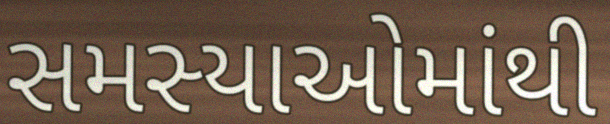
સમસ્યાઓમાંથી